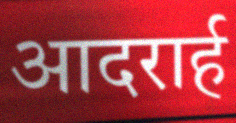
आदरार्ह